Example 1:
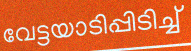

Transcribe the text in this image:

വേട്ടയാടിപ്പിടിച്ച്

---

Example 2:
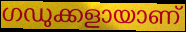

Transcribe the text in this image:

ഗഡുക്കളായാണ്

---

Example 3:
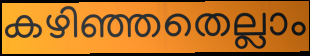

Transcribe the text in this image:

കഴിഞ്ഞതെല്ലാം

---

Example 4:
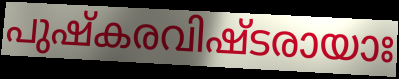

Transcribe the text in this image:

പുഷ്കരവിഷ്ടരായാഃ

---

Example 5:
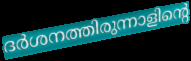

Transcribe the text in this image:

ദർശനത്തിരുന്നാളിന്റെ